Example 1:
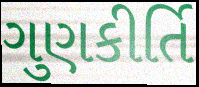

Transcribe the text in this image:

ગુણકીર્તિ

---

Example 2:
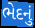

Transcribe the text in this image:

ભેદનું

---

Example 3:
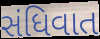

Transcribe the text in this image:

સંધિવાત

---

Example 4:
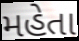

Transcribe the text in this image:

મહેતા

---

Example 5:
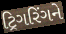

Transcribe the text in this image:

ટ્રિગરિંગને